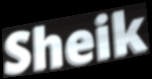
Sheik